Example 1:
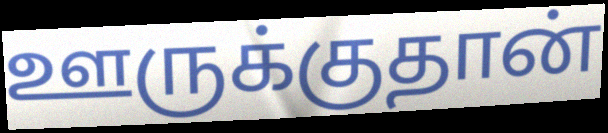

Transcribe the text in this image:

ஊருக்குதான்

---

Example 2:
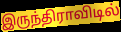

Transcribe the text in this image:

இருந்திராவிடில்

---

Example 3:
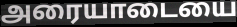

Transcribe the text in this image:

அரையாடையை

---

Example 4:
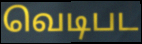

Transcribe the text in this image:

வெடிபட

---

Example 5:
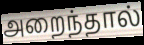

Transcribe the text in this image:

அறைந்தால்